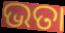
ଭତା